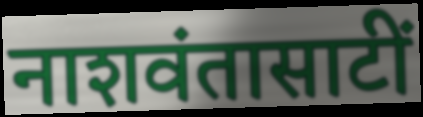
नाशवंतासाटीं